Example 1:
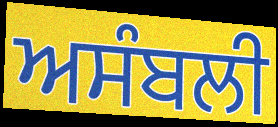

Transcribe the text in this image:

ਅਸੰਬਲੀ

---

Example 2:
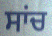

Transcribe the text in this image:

ਸਾਂਚ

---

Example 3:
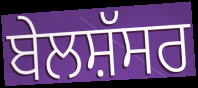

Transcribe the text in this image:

ਬੇਲਸ਼ੱਸਰ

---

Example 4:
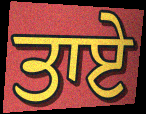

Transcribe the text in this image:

ਤਾਏ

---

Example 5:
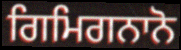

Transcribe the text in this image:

ਗਿਮਿਗਨਾਨੋ